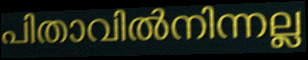
പിതാവിൽനിന്നല്ല